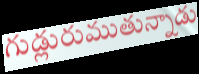
గుడ్లురుముతున్నాడు